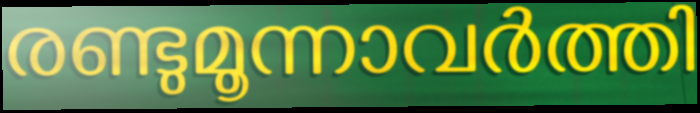
രണ്ടുമൂന്നാവർത്തി